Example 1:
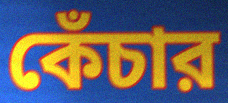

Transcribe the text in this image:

কেঁচার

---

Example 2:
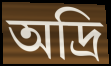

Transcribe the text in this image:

অদ্রি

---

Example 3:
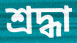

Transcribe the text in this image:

শ্রদ্ধা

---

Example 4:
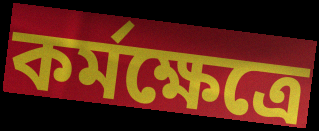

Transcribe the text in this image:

কর্মক্ষেত্রে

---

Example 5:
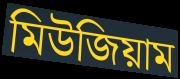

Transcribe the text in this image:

মিউজিয়াম